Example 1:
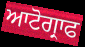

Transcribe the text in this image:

ਆਟੋਗ੍ਰਾਫ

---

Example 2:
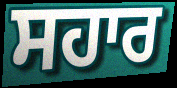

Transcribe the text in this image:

ਸਹਾਰ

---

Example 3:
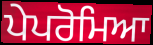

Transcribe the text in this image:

ਪੇਪਰੋਮਿਆ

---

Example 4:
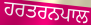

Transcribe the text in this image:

ਹਰਤਰਨਪਾਲ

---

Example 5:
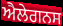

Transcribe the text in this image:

ਐਲੇਗਨਸ